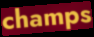
champs